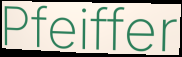
Pfeiffer